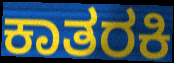
ಕಾತರಕಿ